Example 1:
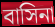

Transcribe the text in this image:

বাসিনা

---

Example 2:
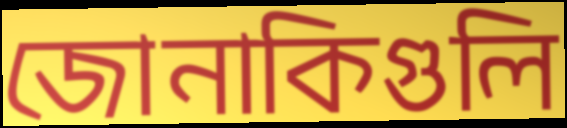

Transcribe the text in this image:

জোনাকিগুলি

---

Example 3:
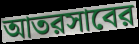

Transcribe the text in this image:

আতরসাবের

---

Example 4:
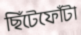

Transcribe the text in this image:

ছিঁটেফোঁটা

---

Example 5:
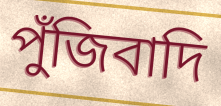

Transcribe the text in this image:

পুঁজিবাদি